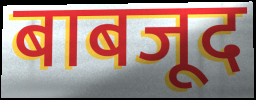
बाबजूद